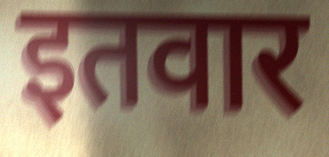
इतवार